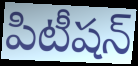
పిటీషన్